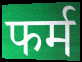
फर्म